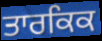
ਤਾਰਕਿਕ